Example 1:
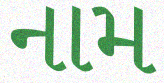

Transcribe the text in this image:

નામ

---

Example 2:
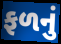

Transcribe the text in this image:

ફળનું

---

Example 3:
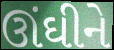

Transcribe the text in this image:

ઊંઘીને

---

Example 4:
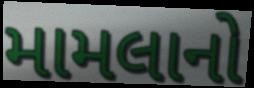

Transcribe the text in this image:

મામલાનો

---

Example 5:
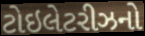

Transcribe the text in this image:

ટોઇલેટરીઝનો